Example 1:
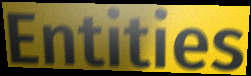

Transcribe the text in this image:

Entities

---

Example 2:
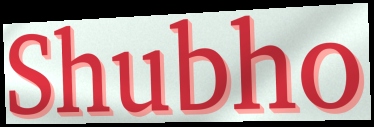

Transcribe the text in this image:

Shubho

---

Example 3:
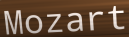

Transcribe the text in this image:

Mozart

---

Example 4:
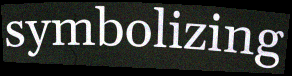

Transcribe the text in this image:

symbolizing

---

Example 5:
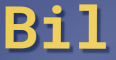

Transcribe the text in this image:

Bil